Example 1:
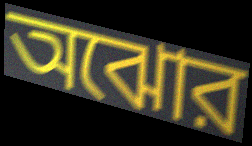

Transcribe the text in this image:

অঝোর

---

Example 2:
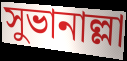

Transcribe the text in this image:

সুভানাল্লা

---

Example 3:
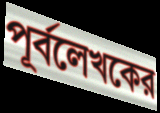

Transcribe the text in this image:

পূর্বলেখকের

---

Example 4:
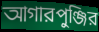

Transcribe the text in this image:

আগারপুঞ্জির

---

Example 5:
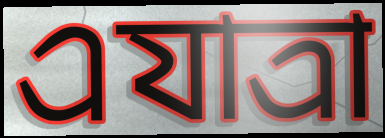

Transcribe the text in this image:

এযাত্রা